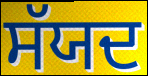
ਸੱਯਦ